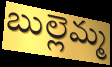
బుల్లెమ్మ